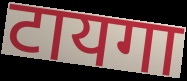
टायगा